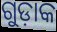
ଗୁଡ଼ାକ